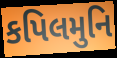
કપિલમુનિ